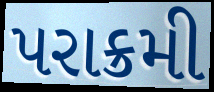
પરાક્રમી